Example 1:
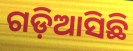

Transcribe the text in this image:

ଗଡ଼ିଆସିଛି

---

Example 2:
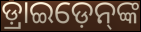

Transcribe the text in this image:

ଡ଼୍ରାଇଡ଼େନ୍‌ଙ୍କ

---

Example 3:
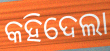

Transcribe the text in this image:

କହିଦେଲା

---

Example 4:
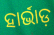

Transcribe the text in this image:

ହାର୍ଭାଡ଼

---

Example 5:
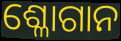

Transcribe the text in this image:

ଶ୍ଳୋଗାନ